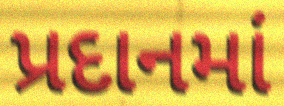
પ્રદાનમાં